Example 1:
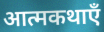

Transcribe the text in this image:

आत्मकथाएँ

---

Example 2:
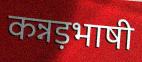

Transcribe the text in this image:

कन्नड़भाषी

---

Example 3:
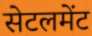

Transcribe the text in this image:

सेटलमेंट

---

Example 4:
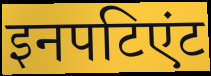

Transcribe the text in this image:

इनपटिएंट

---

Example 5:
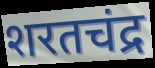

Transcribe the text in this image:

शरतचंद्र